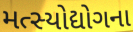
મત્સ્યોદ્યોગના